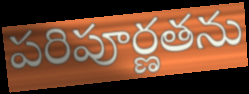
పరిపూర్ణతను